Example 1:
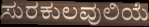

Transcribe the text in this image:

ಸುರಕುಲವುಲಿಯೆ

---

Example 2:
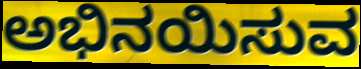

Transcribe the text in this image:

ಅಭಿನಯಿಸುವ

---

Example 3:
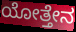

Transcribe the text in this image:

ಯೋತ್ತೇನ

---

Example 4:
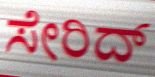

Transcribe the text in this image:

ಸೇರಿದ್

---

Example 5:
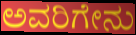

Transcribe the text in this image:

ಅವರಿಗೇನು